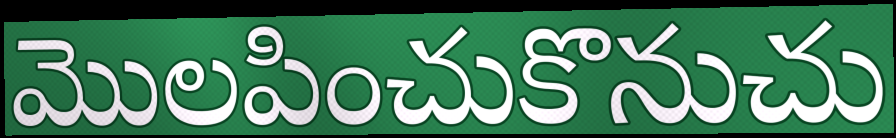
మొలపించుకొనుచు